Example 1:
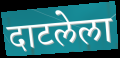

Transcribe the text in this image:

दाटलेला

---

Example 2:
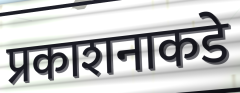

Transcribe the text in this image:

प्रकाशनाकडे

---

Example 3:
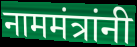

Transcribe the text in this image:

नाममंत्रांनी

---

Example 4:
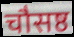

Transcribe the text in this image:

चौसष्ठ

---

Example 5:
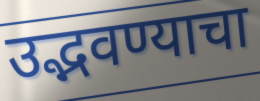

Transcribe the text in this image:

उद्भवण्याचा